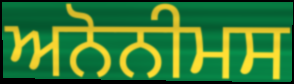
ਅਨੋਨੀਮਸ